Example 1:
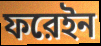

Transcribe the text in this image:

ফরেইন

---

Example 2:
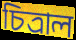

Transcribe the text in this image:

চিত্রাল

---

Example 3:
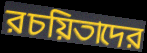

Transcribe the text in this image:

রচয়িতাদের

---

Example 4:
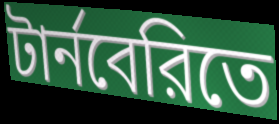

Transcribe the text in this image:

টার্নবেরিতে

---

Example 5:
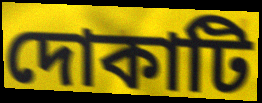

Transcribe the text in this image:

দোকাটি